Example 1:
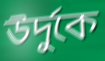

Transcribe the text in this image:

উর্দুকে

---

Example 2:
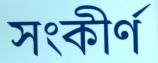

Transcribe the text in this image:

সংকীর্ণ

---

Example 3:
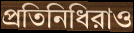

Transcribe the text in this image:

প্রতিনিধিরাও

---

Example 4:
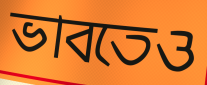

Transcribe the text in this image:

ভাবতেও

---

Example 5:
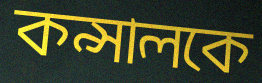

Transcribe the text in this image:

কন্সালকে